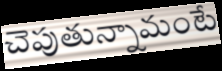
చెపుతున్నామంటే